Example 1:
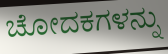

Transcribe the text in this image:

ಚೋದಕಗಳನ್ನು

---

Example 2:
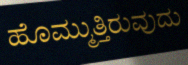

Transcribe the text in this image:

ಹೊಮ್ಮುತ್ತಿರುವುದು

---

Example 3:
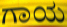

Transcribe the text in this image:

ಗಾಯ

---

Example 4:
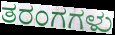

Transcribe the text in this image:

ತರಂಗಗಳು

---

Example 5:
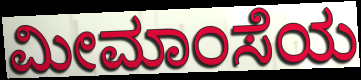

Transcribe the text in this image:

ಮೀಮಾಂಸೆಯ